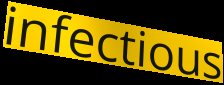
infectious